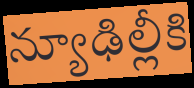
న్యూఢిల్లీకి